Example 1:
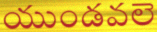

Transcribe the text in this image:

యుండవలె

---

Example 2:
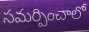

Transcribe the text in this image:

సమర్పించాలో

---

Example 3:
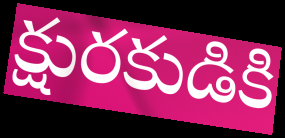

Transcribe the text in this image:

క్షురకుడికి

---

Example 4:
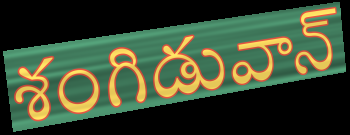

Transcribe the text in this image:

శంగిడువాన్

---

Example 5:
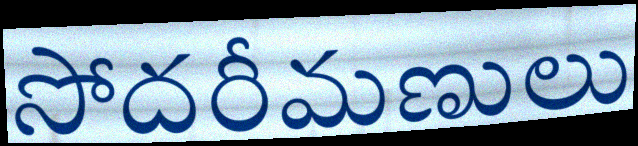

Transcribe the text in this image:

సోదరీమణులు